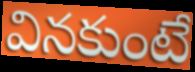
వినకుంటే